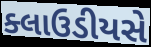
ક્લાઉડીયસે